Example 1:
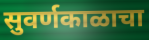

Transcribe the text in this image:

सुवर्णकाळाचा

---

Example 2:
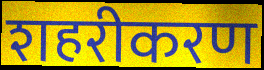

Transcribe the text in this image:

शहरीकरण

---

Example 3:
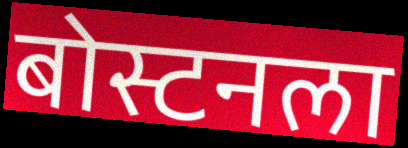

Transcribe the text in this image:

बोस्टनला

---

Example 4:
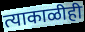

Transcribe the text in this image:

त्याकाळीही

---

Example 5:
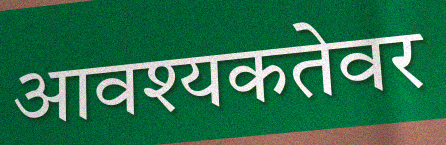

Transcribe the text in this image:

आवश्यकतेवर